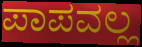
ಪಾಪವಲ್ಲ